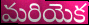
మరియెక